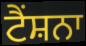
ਟੈਂਸ਼ਨਾ